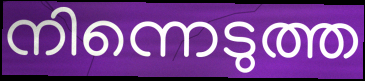
നിന്നെടുത്ത